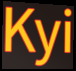
Kyi